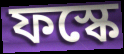
ফস্কে